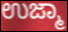
ಉಜ್ಮಾ